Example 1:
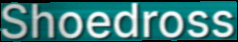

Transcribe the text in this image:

Shoedross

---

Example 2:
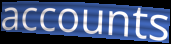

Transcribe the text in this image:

accounts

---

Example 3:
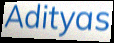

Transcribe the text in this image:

Adityas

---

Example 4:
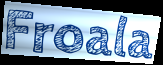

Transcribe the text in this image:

Froala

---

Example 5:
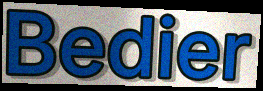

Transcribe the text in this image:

Bedier